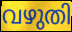
വഴുതി